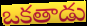
ఒకతాడు